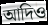
আদিও